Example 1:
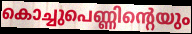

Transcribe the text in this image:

കൊച്ചുപെണ്ണിന്റെയും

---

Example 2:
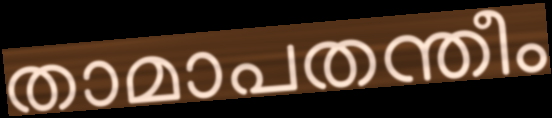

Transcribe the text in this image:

താമാപതന്തീം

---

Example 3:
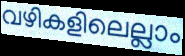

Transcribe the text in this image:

വഴികളിലെല്ലാം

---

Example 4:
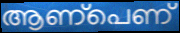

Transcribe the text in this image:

ആണ്പെണ്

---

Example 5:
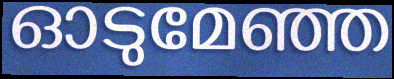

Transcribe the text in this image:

ഓടുമേഞ്ഞ